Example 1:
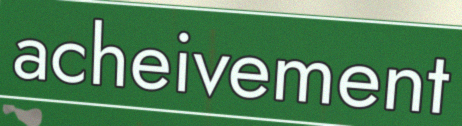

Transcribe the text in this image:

acheivement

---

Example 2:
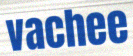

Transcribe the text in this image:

vachee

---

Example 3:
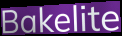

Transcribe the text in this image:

Bakelite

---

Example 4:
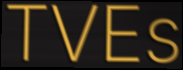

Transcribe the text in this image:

TVEs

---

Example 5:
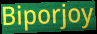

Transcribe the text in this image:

Biporjoy